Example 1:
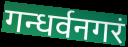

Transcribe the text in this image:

गन्धर्वनगरं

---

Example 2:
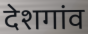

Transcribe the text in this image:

देशगांव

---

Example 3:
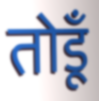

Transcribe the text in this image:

तोडूँ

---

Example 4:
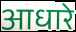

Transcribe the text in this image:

आधारे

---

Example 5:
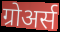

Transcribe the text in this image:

ग्रोअर्स